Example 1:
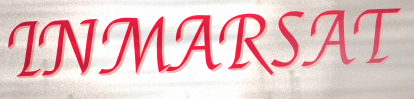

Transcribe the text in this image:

INMARSAT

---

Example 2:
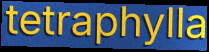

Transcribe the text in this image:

tetraphylla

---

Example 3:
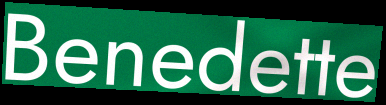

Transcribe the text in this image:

Benedette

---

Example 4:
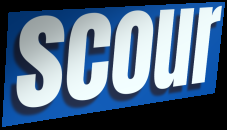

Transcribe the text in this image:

scour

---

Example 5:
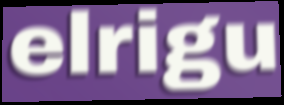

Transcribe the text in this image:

elrigu